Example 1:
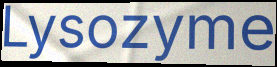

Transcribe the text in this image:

Lysozyme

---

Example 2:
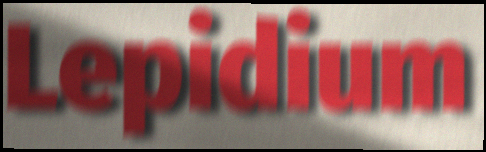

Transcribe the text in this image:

Lepidium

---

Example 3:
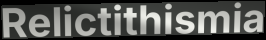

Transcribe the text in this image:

Relictithismia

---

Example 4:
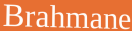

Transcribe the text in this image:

Brahmane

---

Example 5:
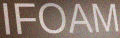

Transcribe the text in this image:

IFOAM